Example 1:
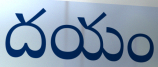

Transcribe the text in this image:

దయం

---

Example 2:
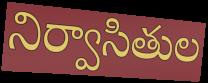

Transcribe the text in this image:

నిర్వాసితుల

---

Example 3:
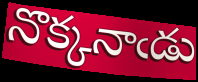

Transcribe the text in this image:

నొక్కనాఁడు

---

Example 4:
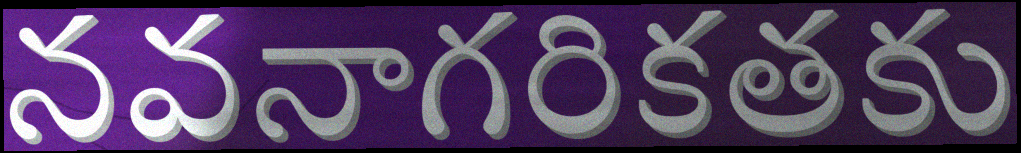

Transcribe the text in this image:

నవనాగరికతకు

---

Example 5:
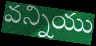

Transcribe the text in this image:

వన్నియు